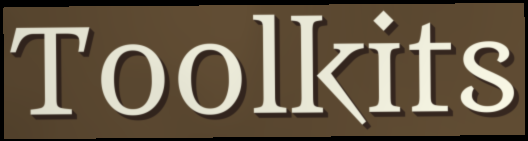
Toolkits